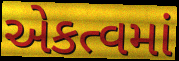
એકત્વમાં